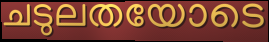
ചടുലതയോടെ